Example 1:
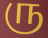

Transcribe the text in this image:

ரு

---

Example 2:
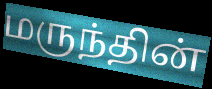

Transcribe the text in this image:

மருந்தின்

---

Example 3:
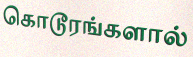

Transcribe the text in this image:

கொடூரங்களால்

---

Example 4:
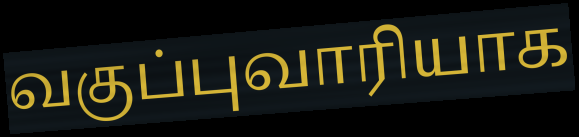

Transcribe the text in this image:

வகுப்புவாரியாக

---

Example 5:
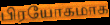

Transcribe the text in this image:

பிரயோகமாக